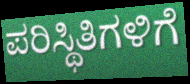
ಪರಿಸ್ಥಿತಿಗಳಿಗೆ